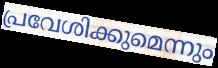
പ്രവേശിക്കുമെന്നും